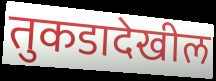
तुकडादेखील